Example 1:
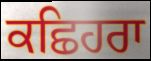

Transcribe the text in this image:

ਕਛਿਹਰਾ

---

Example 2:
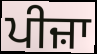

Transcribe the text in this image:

ਪੀਜ਼ਾ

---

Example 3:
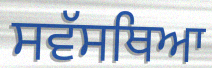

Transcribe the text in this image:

ਸਵੱਸਥਿਆ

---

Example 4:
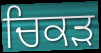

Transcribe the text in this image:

ਚਿਕੜ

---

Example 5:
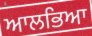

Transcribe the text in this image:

ਆਲਭਿਆ